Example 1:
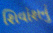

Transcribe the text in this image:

શિવાંશનું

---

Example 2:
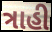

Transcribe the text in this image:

ત્રાહી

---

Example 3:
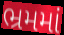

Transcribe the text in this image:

ભ્રમમાં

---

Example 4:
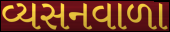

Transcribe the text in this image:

વ્યસનવાળા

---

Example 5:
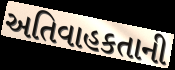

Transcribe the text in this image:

અતિવાહકતાની